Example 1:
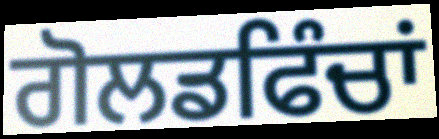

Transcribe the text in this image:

ਗੋਲਡਫਿੰਚਾਂ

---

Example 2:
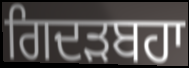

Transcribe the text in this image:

ਗਿਦੜਬਹਾ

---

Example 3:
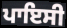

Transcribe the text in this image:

ਪਾਇਸੀ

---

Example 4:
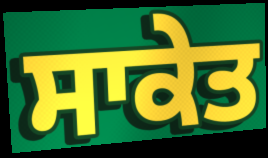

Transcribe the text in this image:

ਸਾਕੇਤ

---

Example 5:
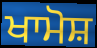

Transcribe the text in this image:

ਖਾਮੋਸ਼